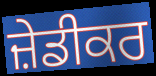
ਜ਼ੇਡੀਕਰ